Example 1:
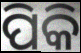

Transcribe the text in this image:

ପିକି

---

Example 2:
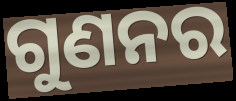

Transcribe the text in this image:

ଗୁଣନର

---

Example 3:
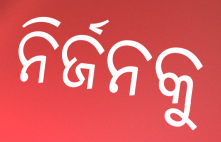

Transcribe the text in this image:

ନିର୍ଜନକୁ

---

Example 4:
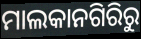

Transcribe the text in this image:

ମାଲକାନଗିରିରୁ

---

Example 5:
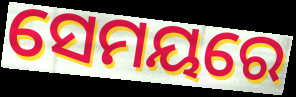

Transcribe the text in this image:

ସେମୟରେ